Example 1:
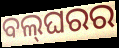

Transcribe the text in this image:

ବଲ୍‌ଘରର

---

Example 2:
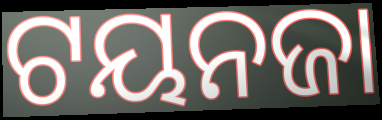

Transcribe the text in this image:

ଟୟନଜା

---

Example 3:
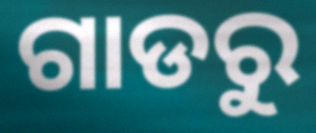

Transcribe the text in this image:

ଗାଡରୁ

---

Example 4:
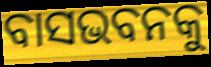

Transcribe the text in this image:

ବାସଭବନକୁ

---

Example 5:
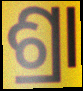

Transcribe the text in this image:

ଶ୍ରା